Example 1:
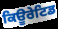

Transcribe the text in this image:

ਕਿਊਰੇਟਿਡ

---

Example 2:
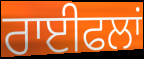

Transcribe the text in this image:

ਰਾਈਫਲਾਂ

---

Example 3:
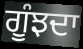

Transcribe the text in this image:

ਗੂੰਝਦਾ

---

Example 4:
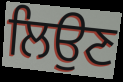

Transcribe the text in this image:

ਲਿਉਣ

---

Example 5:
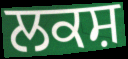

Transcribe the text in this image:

ਲਕਸ਼